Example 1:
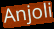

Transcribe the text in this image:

Anjoli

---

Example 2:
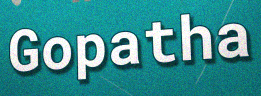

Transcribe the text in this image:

Gopatha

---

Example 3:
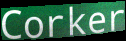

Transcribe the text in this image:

Corker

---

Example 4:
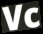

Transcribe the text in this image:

Vc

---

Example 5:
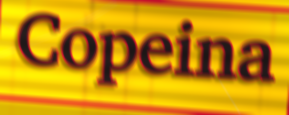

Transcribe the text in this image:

Copeina